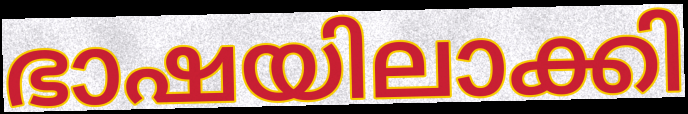
ഭാഷയിലാക്കി